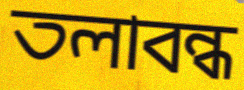
তলাবন্ধ